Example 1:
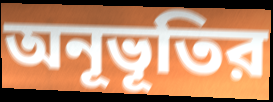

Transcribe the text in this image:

অনূভূতির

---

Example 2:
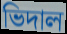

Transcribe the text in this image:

ভিদাল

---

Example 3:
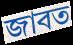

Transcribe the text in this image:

জাবত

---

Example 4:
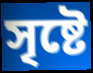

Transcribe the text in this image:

সৃষ্টে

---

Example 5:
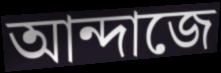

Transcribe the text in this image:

আন্দাজে